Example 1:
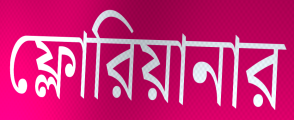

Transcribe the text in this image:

ফ্লোরিয়ানার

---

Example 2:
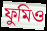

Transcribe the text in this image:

ফুমিও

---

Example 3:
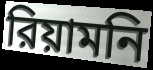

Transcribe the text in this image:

রিয়ামনি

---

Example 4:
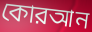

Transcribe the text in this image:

কোরআন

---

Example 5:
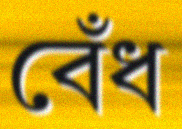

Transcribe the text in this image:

বেঁধ